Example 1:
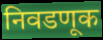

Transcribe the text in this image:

निवडणूक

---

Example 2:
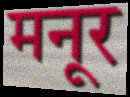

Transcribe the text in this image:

मनूर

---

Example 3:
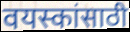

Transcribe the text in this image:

वयस्कांसाठी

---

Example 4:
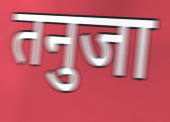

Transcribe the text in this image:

तनुजा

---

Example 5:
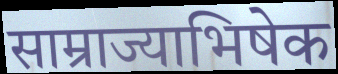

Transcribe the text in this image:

साम्राज्याभिषेक